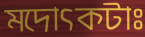
মদোৎকটাঃ